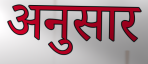
अनुसार